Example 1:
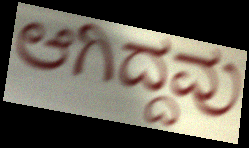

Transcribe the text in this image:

ಆಗಿದ್ದವು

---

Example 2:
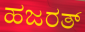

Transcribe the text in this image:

ಹಜರತ್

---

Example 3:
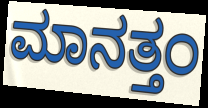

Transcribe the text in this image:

ಮಾನತ್ತಂ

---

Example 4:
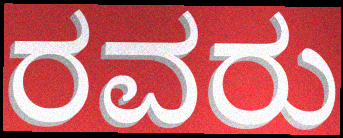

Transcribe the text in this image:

ರವರು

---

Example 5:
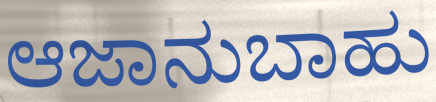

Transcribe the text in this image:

ಆಜಾನುಬಾಹು